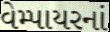
વેમ્પાયરનાં